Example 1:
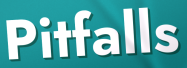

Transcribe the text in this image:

Pitfalls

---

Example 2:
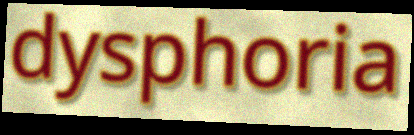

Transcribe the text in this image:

dysphoria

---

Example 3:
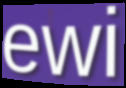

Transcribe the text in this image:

ewi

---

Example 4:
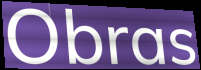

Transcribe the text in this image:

Obras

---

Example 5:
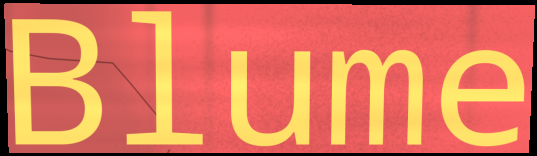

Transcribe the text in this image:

Blume